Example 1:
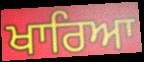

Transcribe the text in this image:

ਖਾਰਿਆ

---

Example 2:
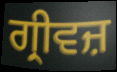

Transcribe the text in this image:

ਗ੍ਰੀਵਜ਼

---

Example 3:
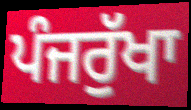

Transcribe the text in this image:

ਪੰਜਰੁੱਖਾ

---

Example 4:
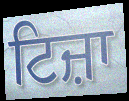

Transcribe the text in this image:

ਟਿਜ਼ਾ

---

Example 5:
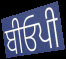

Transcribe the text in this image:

ਬੀਓਪੀ